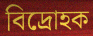
বিদ্ৰোহক